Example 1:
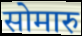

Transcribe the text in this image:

सोमारु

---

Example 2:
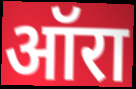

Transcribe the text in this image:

ऑरा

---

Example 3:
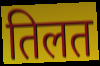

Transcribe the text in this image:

तिलत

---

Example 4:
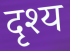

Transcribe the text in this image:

दृश्य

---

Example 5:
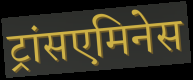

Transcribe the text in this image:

ट्रांसएमिनेस